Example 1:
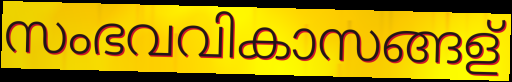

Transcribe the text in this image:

സംഭവവികാസങ്ങള്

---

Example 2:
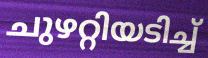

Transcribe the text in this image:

ചുഴറ്റിയടിച്ച്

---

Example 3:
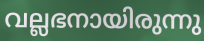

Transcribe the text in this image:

വല്ലഭനായിരുന്നു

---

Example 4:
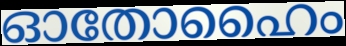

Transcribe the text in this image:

ഓതോഹൈം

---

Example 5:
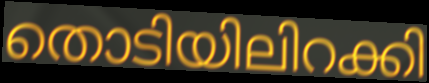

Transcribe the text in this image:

തൊടിയിലിറക്കി